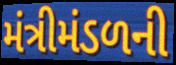
મંત્રીમંડળની